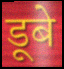
डूबे